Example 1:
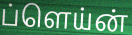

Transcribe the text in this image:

ப்ளெய்ன்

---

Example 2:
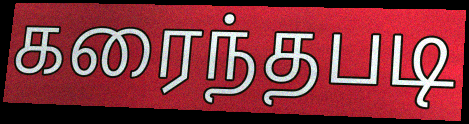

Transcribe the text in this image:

கரைந்தபடி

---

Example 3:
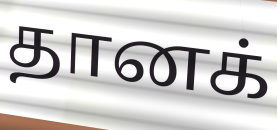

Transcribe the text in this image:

தானக்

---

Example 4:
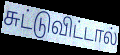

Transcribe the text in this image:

சுட்டுவிட்டால்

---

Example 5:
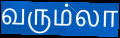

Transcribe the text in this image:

வரும்லா